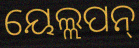
ୟେଲ୍ଲପନ୍